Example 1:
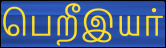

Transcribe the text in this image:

பெறீஇயர்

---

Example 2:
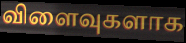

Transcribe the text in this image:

விளைவுகளாக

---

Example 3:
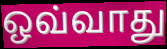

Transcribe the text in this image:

ஒவ்வாது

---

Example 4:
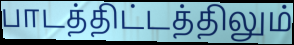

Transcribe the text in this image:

பாடத்திட்டத்திலும்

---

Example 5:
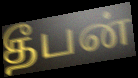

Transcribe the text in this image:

தீபன்